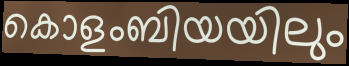
കൊളംബിയയിലും